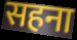
सहना